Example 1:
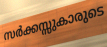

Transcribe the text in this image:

സർക്കസ്സുകാരുടെ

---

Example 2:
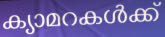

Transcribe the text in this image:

ക്യാമറകൾക്ക്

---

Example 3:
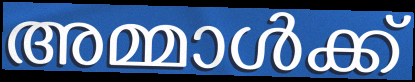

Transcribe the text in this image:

അമ്മാൾക്ക്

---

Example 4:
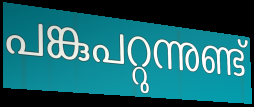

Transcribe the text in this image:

പങ്കുപറ്റുന്നുണ്ട്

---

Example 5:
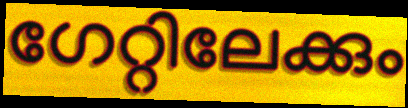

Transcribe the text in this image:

ഗേറ്റിലേക്കും